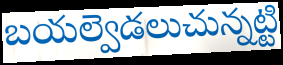
బయల్వెడలుచున్నట్టి